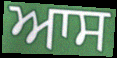
ਆਸ